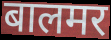
बालमर